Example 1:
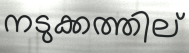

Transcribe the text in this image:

നടുക്കത്തില്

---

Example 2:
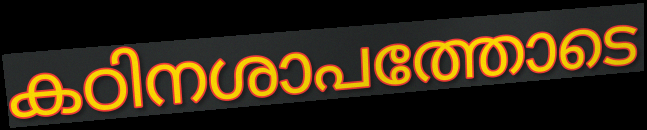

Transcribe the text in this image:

കഠിനശാപത്തോടെ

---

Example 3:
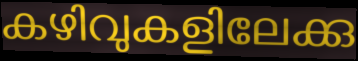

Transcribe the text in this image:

കഴിവുകളിലേക്കു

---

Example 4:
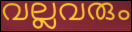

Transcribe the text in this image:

വല്ലവരും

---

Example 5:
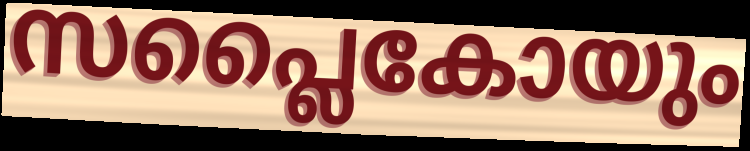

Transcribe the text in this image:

സപ്ലൈകോയും